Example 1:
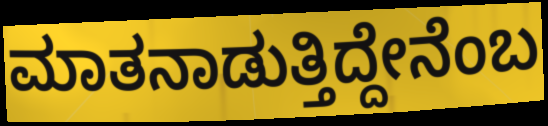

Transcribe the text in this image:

ಮಾತನಾಡುತ್ತಿದ್ದೇನೆಂಬ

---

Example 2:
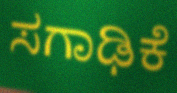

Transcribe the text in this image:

ಸಗಾಢಿಕೆ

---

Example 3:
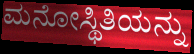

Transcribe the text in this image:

ಮನೋಸ್ಥಿತಿಯನ್ನು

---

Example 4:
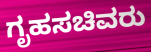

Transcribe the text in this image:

ಗೃಹಸಚಿವರು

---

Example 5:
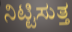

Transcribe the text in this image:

ನಿಟ್ಟಿಸುತ್ತ